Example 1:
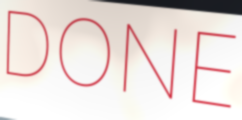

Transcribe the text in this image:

DONE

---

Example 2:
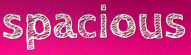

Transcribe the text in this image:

spacious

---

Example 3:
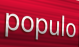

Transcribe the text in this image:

populo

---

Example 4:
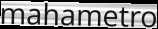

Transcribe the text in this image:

mahametro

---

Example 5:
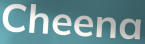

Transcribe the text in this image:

Cheena